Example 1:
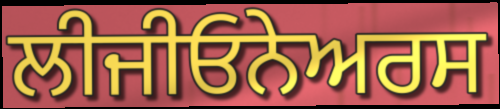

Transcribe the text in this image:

ਲੀਜੀਓਨੇਅਰਸ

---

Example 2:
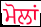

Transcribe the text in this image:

ਮੋਲਾਂ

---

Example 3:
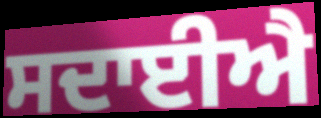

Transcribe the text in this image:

ਸਦਾਈਐ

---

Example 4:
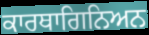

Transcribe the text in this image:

ਕਾਰਥਾਗਿਨਿਅਨ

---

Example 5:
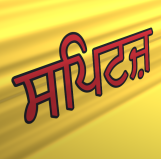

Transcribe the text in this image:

ਸਪਿਟਜ਼